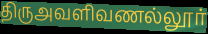
திருஅவளிவணல்லூர்